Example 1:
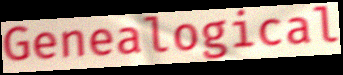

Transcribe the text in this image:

Genealogical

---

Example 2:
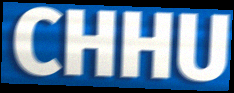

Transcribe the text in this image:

CHHU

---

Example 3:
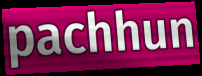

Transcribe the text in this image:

pachhun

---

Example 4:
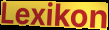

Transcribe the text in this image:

Lexikon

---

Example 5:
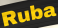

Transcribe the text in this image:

Ruba